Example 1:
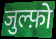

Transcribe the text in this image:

जुल्फ़ो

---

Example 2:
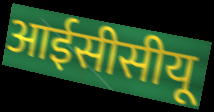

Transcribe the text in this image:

आईसीसीयू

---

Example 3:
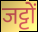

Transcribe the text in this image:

जट्टों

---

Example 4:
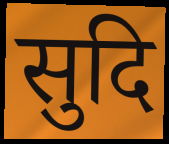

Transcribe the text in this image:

सुदि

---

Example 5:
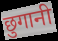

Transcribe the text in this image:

छुगानी